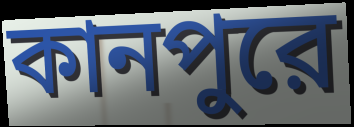
কানপুরে